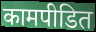
कामपीडित